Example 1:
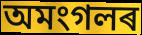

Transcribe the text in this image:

অমংগলৰ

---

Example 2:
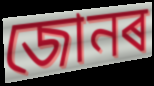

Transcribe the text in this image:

জোনৰ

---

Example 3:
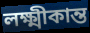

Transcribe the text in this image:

লক্ষ্মীকান্ত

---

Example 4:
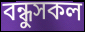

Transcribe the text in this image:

বন্ধুসকল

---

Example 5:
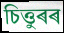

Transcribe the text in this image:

চিত্তুৰৰ